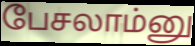
பேசலாம்னு